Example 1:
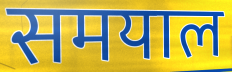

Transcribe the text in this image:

समयाल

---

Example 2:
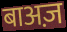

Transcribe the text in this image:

बाअज़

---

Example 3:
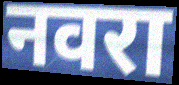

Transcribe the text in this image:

नवरा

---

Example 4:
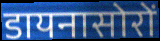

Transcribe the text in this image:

डायनासोरों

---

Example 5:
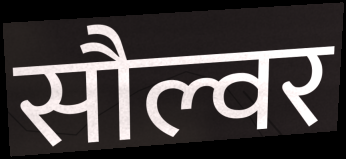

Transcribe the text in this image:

सौल्वर